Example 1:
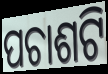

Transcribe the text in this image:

ପଚାଶଟି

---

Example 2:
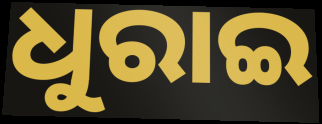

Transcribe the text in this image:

ଧୁରାଇ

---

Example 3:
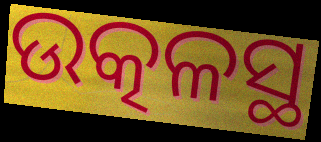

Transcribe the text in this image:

ଉତ୍କଳସ୍ଥ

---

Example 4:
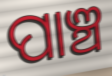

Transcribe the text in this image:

ପାଞ୍ଚ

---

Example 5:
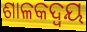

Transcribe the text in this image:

ଶାଳକଦ୍ୱୟ